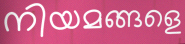
നിയമങ്ങളെ